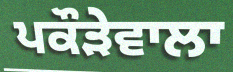
ਪਕੌੜੇਵਾਲਾ